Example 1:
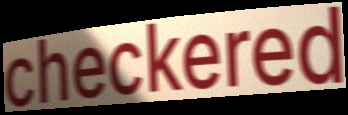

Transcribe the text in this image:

checkered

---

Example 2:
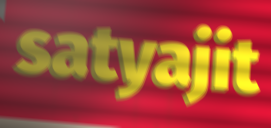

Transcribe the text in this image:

satyajit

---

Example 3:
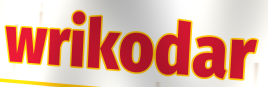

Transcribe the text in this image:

wrikodar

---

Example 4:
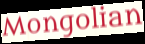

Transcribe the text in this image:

Mongolian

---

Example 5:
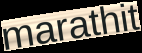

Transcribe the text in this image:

marathit